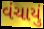
વંચાયું